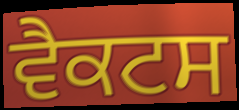
ਵੈਕਟਸ